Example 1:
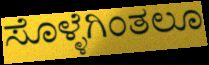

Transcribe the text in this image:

ಸೊಳ್ಳೆಗಿಂತಲೂ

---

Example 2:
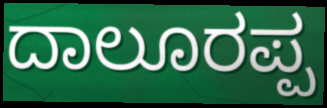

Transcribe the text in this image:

ದಾಲೂರಪ್ಪ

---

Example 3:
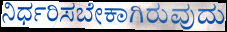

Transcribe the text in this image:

ನಿರ್ಧರಿಸಬೇಕಾಗಿರುವುದು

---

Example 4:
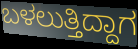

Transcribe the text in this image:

ಬಳಲುತ್ತಿದ್ದಾಗ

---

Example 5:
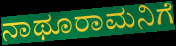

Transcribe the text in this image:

ನಾಥೂರಾಮನಿಗೆ